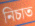
নিচাত